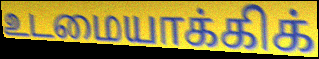
உடமையாக்கிக்